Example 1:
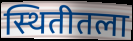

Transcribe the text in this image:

स्थितीतला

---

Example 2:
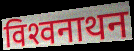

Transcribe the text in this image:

विश्वनाथन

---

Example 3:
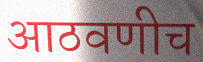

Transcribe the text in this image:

आठवणीच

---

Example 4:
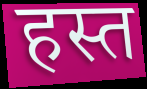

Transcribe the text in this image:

हस्त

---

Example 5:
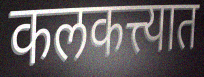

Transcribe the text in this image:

कलकत्त्यात